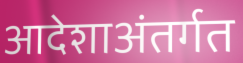
आदेशाअंतर्गत